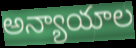
అన్యాయాల